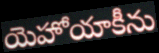
యెహోయాకీను